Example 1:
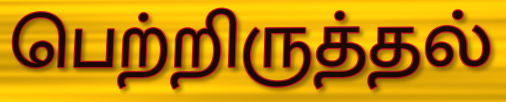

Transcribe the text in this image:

பெற்றிருத்தல்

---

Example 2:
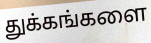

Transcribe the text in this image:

துக்கங்களை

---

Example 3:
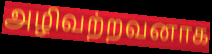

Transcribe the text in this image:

அழிவற்றவனாக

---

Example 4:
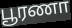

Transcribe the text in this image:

பூரணா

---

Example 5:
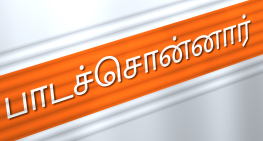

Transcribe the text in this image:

பாடச்சொன்னார்